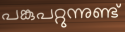
പങ്കുപറ്റുന്നുണ്ട്